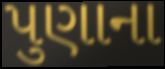
પુણાના